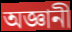
অজ্ঞানী